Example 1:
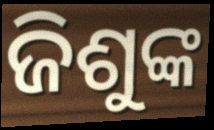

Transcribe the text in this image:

ଜିଶୁଙ୍କ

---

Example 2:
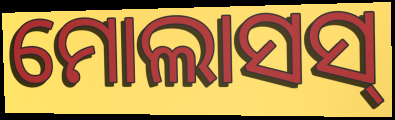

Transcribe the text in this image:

ମୋଲାସସ୍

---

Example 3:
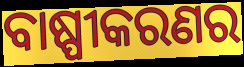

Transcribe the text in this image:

ବାଷ୍ପୀକରଣର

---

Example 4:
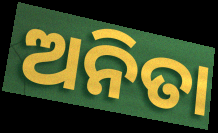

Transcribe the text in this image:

ଅନିତା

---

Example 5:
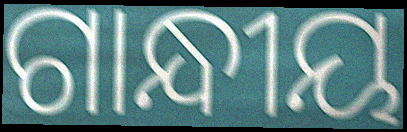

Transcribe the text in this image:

ଗାନ୍ଧୀୟ